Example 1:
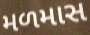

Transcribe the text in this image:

મળમાસ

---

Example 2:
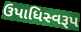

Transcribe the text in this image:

ઉપાધિસ્વરૂપ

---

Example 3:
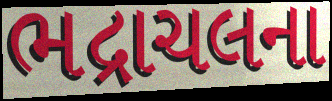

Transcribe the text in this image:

ભદ્રાચલના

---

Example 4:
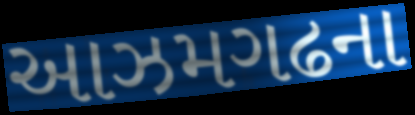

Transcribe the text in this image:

આઝમગઢના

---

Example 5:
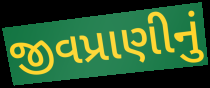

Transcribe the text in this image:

જીવપ્રાણીનું